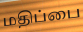
மதிப்பை